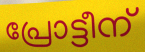
പ്രോട്ടീന്